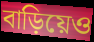
বাড়িয়েও